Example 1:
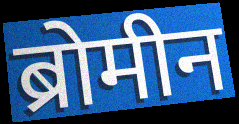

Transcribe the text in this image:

ब्रोमीन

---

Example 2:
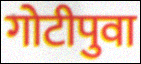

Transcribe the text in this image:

गोटीपुवा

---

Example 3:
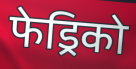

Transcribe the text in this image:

फेड्रिको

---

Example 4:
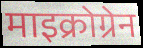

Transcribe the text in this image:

माइक्रोग्रेन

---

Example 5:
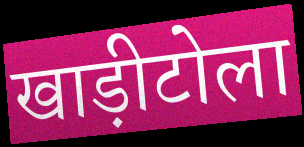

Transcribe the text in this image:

खाड़ीटोला